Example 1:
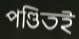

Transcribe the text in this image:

পণ্ডিতই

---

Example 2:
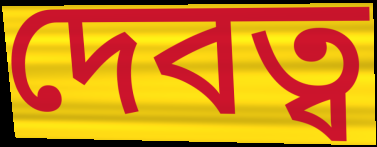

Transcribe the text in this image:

দেবত্ব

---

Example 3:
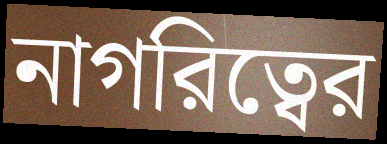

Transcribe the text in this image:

নাগরিত্বের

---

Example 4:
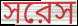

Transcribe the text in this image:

সরেস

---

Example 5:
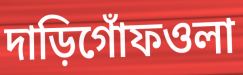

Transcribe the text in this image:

দাড়িগোঁফওলা